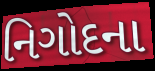
નિગોદના